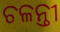
ଚଳନ୍ତୀ